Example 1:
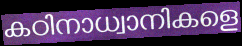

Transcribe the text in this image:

കഠിനാധ്വാനികളെ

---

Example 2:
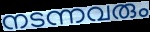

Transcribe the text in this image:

നടന്നവരും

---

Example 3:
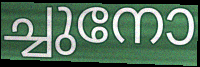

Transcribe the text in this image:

ച്ചുനോ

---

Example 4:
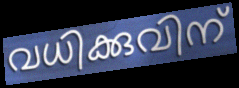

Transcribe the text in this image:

വധിക്കുവിന്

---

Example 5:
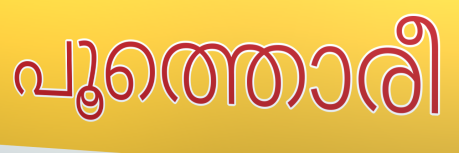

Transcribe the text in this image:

പൂത്തൊരീ